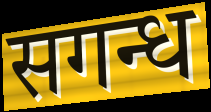
सगन्ध